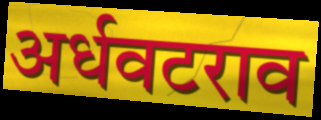
अर्धवटराव